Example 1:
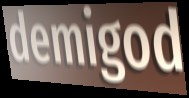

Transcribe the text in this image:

demigod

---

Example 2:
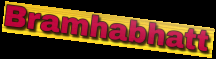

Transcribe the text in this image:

Bramhabhatt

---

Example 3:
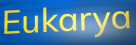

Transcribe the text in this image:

Eukarya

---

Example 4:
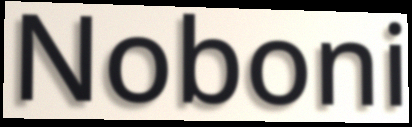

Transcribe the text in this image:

Noboni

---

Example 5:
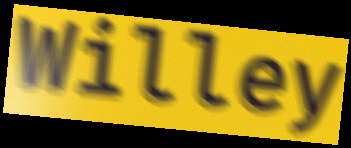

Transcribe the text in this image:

Willey